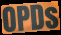
OPDs